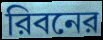
রিবনের